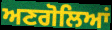
ਅਣਗੋਲਿਆਂ